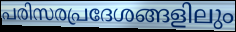
പരിസരപ്രദേശങ്ങളിലും